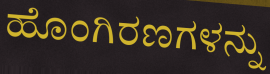
ಹೊಂಗಿರಣಗಳನ್ನು